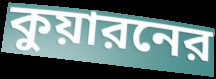
কুয়ারনের